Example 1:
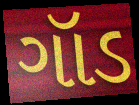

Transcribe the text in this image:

ગૉડ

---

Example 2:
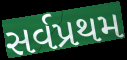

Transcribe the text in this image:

સર્વપ્રથમ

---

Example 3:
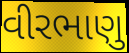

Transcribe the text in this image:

વીરભાણુ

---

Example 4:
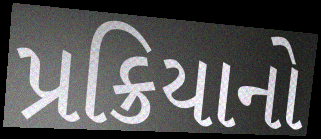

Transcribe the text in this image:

પ્રક્રિયાનો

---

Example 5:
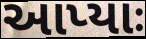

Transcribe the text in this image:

આપ્યાઃ